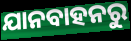
ଯାନବାହନରୁ